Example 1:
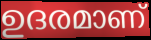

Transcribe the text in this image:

ഉദരമാണ്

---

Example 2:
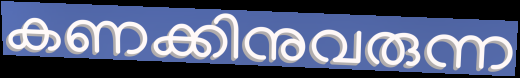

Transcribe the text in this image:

കണക്കിനുവരുന്ന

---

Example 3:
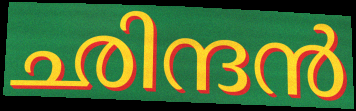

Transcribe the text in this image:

ഛിന്ദൻ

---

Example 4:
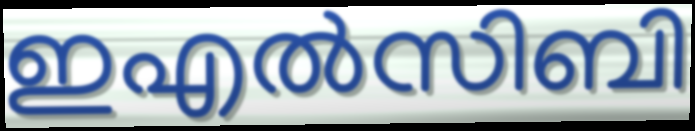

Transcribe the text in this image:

ഇഎൽസിബി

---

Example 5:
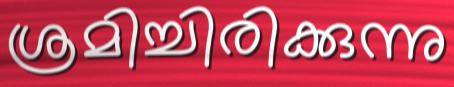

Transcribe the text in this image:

ശ്രമിച്ചിരിക്കുന്നു